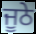
ਜੂਠੇ